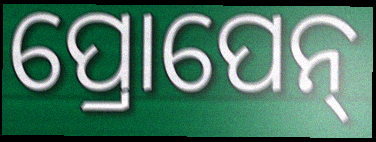
ପ୍ରୋପେନ୍